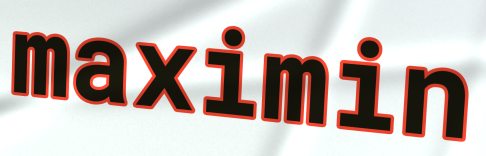
maximin